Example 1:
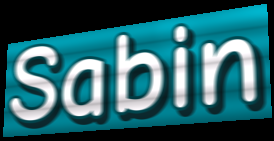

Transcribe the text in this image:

Sabin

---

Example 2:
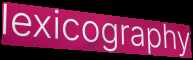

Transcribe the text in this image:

lexicography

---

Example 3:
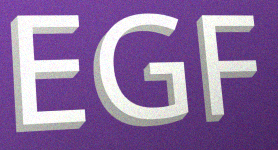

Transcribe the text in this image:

EGF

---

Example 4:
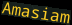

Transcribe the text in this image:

Amasiam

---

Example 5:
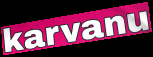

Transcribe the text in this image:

karvanu